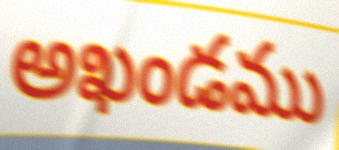
అఖండము